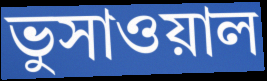
ভুসাওয়াল